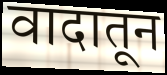
वादातून